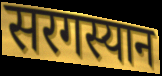
सरगस्यान